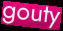
gouty